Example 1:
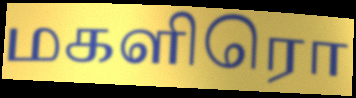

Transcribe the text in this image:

மகளிரொ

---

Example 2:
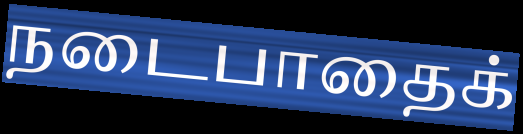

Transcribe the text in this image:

நடைபாதைக்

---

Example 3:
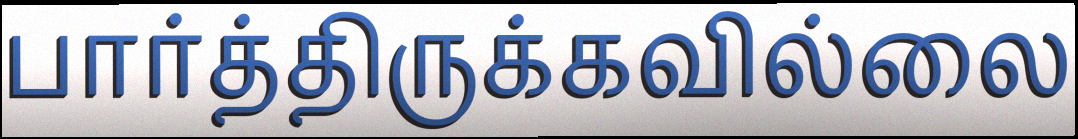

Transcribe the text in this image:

பார்த்திருக்கவில்லை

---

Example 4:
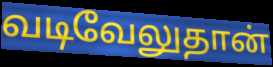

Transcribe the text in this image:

வடிவேலுதான்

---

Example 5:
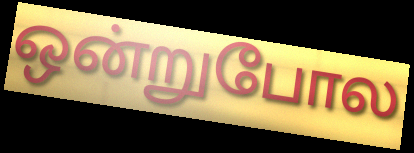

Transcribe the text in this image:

ஒன்றுபோல